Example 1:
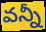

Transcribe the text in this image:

వన్నీ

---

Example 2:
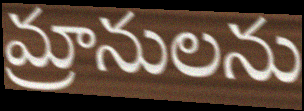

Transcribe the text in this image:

మ్రానులను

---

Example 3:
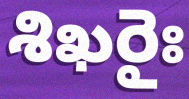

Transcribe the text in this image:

శిఖరైః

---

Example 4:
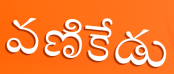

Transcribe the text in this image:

వణికేడు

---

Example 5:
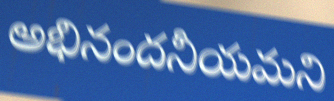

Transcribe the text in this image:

అభినందనీయమని